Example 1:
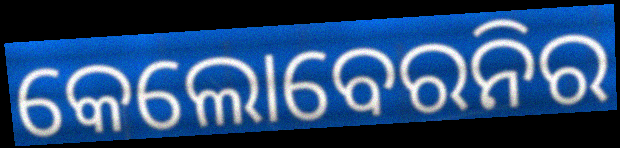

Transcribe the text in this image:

କେଲୋବେରନିର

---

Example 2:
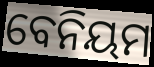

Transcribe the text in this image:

ବେନିୟମ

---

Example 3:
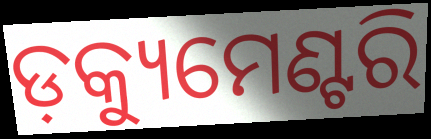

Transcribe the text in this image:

ଡ଼କ୍ୟୁମେଣ୍ଟରି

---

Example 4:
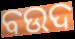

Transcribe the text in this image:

ବଉଦ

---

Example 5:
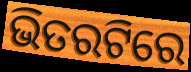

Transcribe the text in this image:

ଭିତରଟିରେ